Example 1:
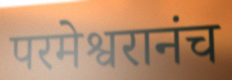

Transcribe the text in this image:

परमेश्वरानंच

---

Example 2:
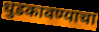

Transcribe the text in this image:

धुडकावण्याचा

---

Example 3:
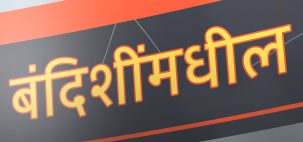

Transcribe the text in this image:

बंदिशींमधील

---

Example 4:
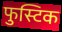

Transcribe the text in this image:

फुस्टिक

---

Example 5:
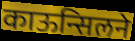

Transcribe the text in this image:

काऊन्सिलने